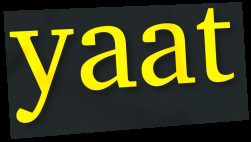
yaat